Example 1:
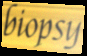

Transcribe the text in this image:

biopsy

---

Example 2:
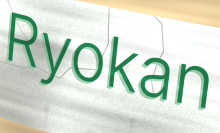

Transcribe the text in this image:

Ryokan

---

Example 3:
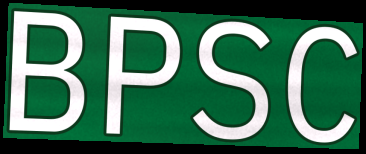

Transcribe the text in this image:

BPSC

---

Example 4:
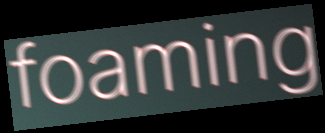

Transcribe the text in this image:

foaming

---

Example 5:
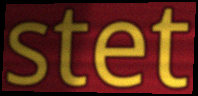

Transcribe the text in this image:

stet